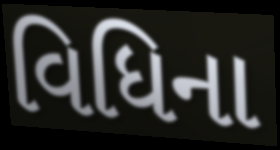
વિધિના